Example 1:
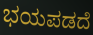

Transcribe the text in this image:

ಭಯಪಡದೆ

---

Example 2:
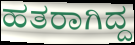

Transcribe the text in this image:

ಹತರಾಗಿದ್ದ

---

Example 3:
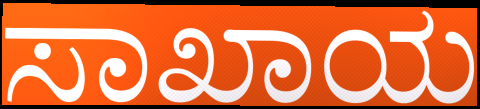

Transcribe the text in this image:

ಸಾಖಾಯ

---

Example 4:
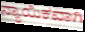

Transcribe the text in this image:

ನ್ಯಾಯಿಕವಾಗಿ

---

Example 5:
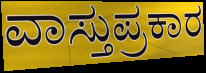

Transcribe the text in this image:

ವಾಸ್ತುಪ್ರಕಾರ